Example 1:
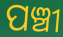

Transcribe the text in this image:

ପଞ୍ଚୀ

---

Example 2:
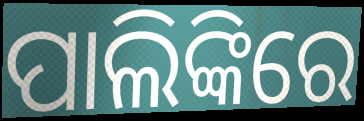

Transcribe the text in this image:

ପାଲିଙ୍କିରେ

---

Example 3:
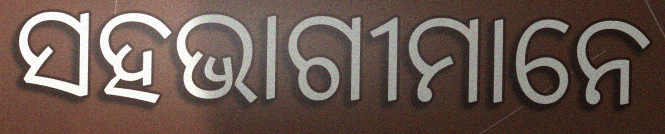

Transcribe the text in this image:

ସହଭାଗୀମାନେ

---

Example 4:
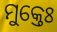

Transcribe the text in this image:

ମୁକ୍ତେଃ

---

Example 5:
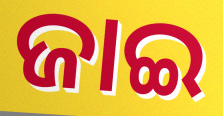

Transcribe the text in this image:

ଜାଇ